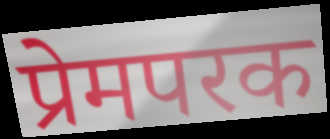
प्रेमपरक